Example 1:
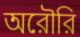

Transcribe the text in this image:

অরৌরি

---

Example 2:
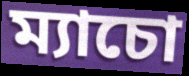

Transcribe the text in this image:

ম্যাচো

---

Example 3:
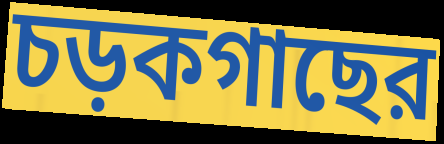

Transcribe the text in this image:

চড়কগাছের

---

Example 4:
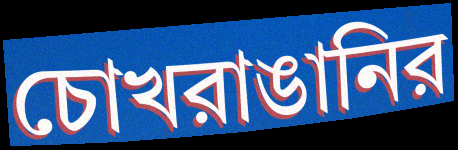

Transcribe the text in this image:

চোখরাঙানির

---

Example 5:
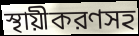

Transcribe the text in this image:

স্থায়ীকরণসহ